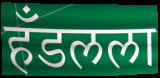
हँडलला